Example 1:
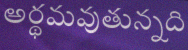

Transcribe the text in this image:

అర్థమవుతున్నది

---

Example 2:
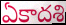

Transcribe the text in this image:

ఏకాదశి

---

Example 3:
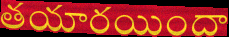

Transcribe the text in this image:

తయారయిందా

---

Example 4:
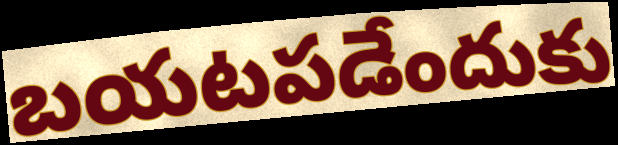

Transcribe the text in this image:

బయటపడేందుకు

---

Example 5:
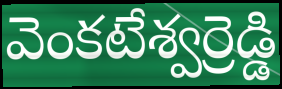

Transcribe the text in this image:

వెంకటేశ్వర్రెడ్డి